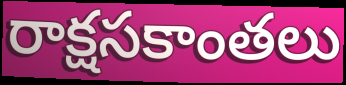
రాక్షసకాంతలు